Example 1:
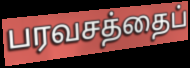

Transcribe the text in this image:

பரவசத்தைப்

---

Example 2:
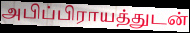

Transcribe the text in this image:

அபிப்பிராயத்துடன்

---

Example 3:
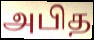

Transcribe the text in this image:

அபித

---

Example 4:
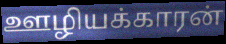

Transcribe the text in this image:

ஊழியக்காரன்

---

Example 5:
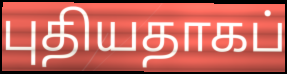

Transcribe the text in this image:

புதியதாகப்